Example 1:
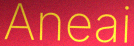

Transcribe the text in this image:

Aneai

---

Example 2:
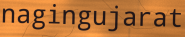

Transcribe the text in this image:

nagingujarat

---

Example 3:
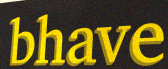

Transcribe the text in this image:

bhave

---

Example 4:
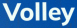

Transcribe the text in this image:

Volley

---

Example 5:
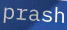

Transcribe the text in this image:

prash